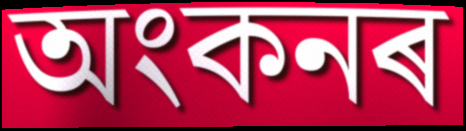
অংকনৰ